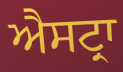
ਐਸਟ੍ਰਾ